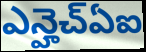
ఎన్హెచ్ఏఐ